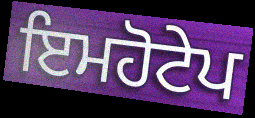
ਇਮਹੋਟੇਪ